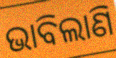
ଭାବିଲାଣି